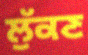
ਲੁੱਕਣ